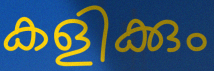
കളിക്കും